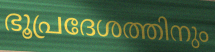
ഭൂപ്രദേശത്തിനും